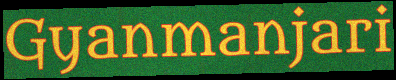
Gyanmanjari